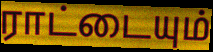
ராட்டையும்